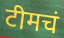
टीमचं